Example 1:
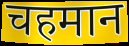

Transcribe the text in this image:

चहमान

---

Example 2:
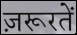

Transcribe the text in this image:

ज़रूरतें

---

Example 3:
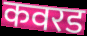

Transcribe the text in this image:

कवरड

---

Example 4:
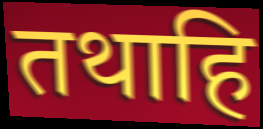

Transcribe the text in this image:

तथाहि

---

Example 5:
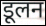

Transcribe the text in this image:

डूलन